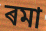
ৰমা